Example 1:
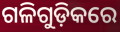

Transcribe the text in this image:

ଗଳିଗୁଡ଼ିକରେ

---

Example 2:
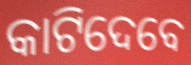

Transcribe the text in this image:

କାଟିଦେବେ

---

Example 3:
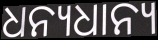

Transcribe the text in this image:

ଧନ୍ୟଧାନ୍ୟ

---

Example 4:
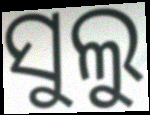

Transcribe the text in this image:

ସୁଲୁ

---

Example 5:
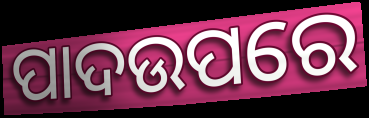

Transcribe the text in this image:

ପାଦଉପରେ